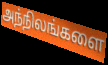
அந்நிலங்களை